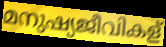
മനുഷ്യജീവികള്